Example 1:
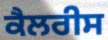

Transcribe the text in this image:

ਕੈਲਰੀਸ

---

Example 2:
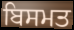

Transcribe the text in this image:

ਬਿਸਮਤ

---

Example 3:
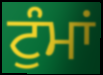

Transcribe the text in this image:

ਟੁੰਮਾਂ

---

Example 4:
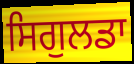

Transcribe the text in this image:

ਸਿਗੁਲਡਾ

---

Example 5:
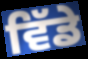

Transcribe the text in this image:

ਵਿੱਡੇ